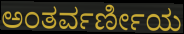
ಅಂತರ್ವರ್ಣೀಯ